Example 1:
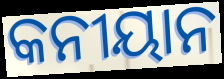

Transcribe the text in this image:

କନୀୟାନ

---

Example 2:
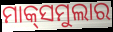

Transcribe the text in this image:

ମାକ୍‌ସମୁଲାର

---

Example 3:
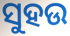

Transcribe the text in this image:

ସୁହଉ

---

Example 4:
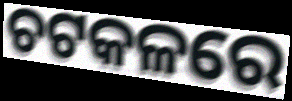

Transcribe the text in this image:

ଚଟକଳରେ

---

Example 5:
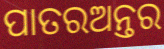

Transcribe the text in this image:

ପାତରଅନ୍ତର